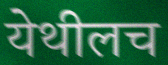
येथीलच